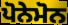
ਪੋਨੇਮੋਨ